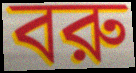
বরু